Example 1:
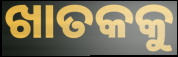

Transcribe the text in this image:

ଖାତକକୁ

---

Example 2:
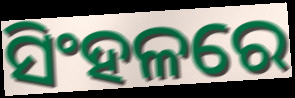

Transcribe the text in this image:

ସିଂହଳରେ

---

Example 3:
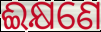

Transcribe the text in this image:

ଈକ୍ଷଣେ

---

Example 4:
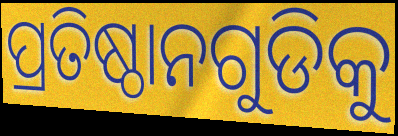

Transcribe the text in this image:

ପ୍ରତିଷ୍ଠାନଗୁଡିକୁ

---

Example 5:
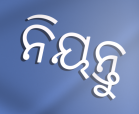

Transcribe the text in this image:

ନିୟନ୍ତୁ